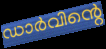
ഡാർവിന്റെ